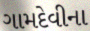
ગામદેવીના